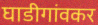
घाडीगांवकर